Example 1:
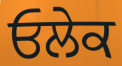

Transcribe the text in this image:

ਓਲੇਕ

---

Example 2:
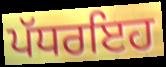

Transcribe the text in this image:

ਪੱਧਰਇਹ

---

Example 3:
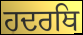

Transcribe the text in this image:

ਹਦਰਥਿ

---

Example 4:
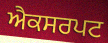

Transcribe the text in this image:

ਐਕਸਰਪਟ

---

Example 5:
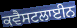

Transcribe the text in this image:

ਕਵੈਸਟਲਾਈਨ